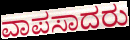
ವಾಪಸಾದರು